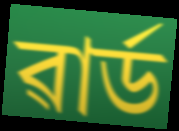
ৱাৰ্ড